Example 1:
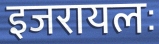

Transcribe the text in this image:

इजरायलः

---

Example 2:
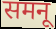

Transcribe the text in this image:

समनू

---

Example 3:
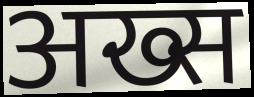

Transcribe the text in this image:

अख्स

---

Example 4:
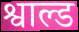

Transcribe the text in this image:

श्वाल्ड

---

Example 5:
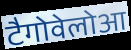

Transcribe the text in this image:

टैगोवेलोआ